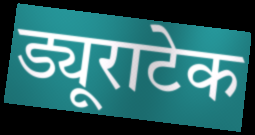
ड्यूराटेक